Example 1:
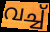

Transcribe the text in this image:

വച്ച്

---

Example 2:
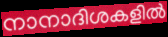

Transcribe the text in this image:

നാനാദിശകളിൽ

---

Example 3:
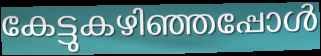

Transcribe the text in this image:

കേട്ടുകഴിഞ്ഞപ്പോൾ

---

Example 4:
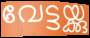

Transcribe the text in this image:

വേട്ടയ്ക്കു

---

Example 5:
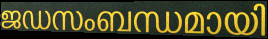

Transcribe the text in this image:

ജഡസംബന്ധമായി